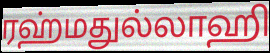
ரஹ்மதுல்லாஹி